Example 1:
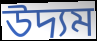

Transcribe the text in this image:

উদ্যম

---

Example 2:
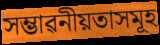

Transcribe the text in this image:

সম্ভাৱনীয়তাসমূহ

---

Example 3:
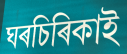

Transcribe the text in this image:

ঘৰচিৰিকাই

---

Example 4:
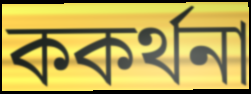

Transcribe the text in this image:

ককৰ্থনা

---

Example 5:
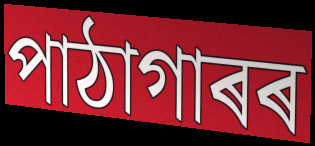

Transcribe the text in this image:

পাঠাগাৰৰ